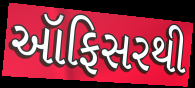
ઑફિસરથી